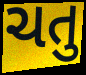
ચતુ